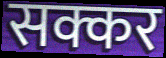
सक्कर